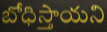
బోధిస్తాయని